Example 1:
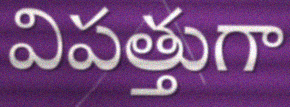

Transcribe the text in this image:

విపత్తుగా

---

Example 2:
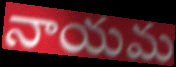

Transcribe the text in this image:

నాయమ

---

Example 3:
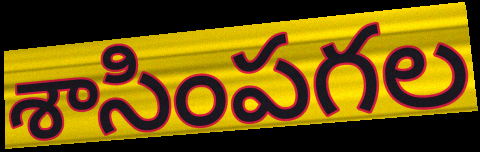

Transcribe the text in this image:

శాసింపగల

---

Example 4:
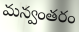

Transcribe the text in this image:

మన్వంతరం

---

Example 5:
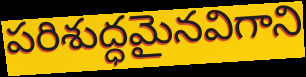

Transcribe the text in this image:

పరిశుద్ధమైనవిగాని